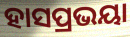
ହାସପ୍ରଭୟା